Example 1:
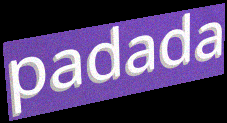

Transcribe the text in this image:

padada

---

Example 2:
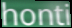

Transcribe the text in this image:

honti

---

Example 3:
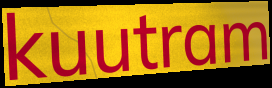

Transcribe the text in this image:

kuutram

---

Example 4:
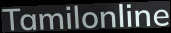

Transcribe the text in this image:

Tamilonline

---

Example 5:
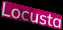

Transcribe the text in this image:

Locusta